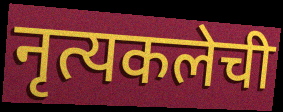
नृत्यकलेची